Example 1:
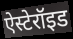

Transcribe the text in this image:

ऐस्टेरॉइड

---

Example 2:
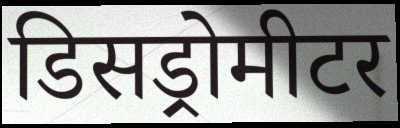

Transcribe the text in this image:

डिसड्रोमीटर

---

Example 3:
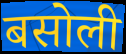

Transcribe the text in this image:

बसोली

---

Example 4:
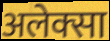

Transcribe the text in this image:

अलेक्‍सा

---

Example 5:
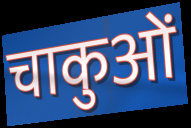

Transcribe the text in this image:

चाकुओं